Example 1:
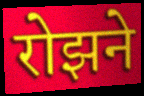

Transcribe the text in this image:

रोझने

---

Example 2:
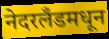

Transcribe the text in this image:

नेदरलँडमधून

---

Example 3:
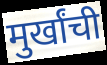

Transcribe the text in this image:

मुर्खांची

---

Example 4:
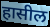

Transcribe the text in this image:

हासील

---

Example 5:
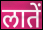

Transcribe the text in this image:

लातें